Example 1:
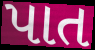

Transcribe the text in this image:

પાત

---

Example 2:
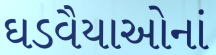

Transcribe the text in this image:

ઘડવૈયાઓનાં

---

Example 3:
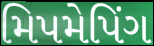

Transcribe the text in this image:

મિપમેપિંગ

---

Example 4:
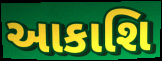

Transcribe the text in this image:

આકાશિ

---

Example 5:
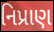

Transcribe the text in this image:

નિપ્રાણ